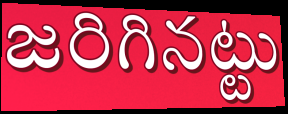
జరిగినట్టు